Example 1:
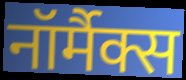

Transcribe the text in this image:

नॉर्मैक्स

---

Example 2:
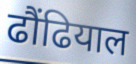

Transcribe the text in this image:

ढौंढियाल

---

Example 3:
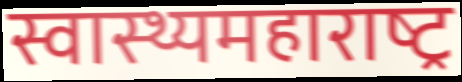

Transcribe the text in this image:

स्वास्थ्यमहाराष्ट्र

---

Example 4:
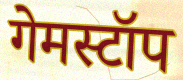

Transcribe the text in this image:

गेमस्टॉप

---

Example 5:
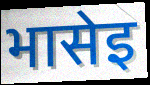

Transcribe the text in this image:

भासेइ